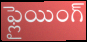
ఫ్లైయింగ్